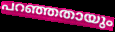
പറഞ്ഞതായും